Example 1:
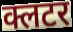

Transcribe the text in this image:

क्लटर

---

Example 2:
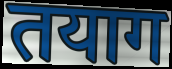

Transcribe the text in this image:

तयाग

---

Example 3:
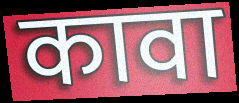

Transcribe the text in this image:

कावा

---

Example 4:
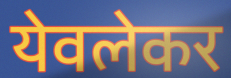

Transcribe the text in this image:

येवलेकर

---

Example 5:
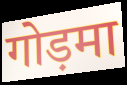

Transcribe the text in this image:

गोड़मा